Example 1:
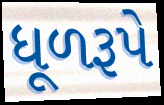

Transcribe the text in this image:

ધૂળરૂપે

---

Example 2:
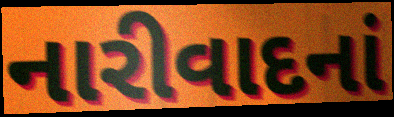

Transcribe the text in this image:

નારીવાદનાં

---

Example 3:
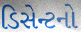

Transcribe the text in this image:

ડિસેન્ટનો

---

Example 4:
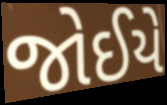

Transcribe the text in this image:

જોઈયે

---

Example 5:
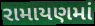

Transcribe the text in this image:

રામાયણમાં